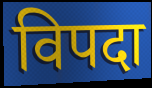
विपदा